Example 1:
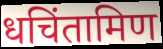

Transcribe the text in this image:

धचिंतामिण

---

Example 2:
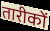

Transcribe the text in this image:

तारीकों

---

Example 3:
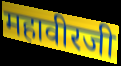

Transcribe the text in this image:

महावीरजी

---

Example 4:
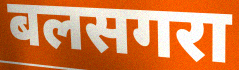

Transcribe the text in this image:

बलसगरा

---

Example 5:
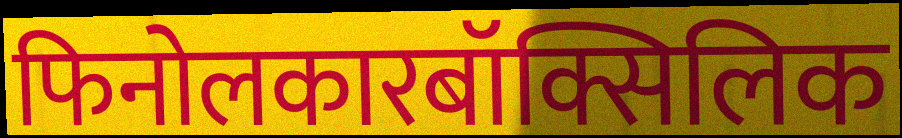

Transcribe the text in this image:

फिनोलकारबॉक्सिलिक